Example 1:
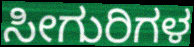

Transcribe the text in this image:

ಸೀಗುರಿಗಳ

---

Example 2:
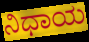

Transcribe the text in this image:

ನಿಧಾಯ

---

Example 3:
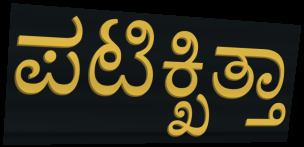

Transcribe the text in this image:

ಪಟಿಕ್ಖಿತ್ತಾ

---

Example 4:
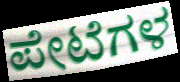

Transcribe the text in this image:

ಪೇಟೆಗಳ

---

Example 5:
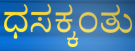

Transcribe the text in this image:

ಧಸಕ್ಕಂತು